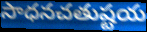
సాధనచతుష్టయ